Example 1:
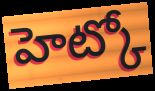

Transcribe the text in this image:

హెట్కో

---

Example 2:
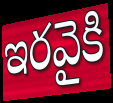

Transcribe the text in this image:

ఇరవైకి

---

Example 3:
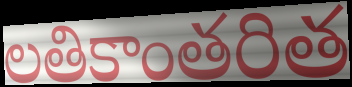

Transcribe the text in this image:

లతికాంతరిత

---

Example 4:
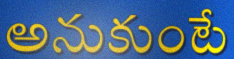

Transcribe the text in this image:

అనుకుంటే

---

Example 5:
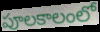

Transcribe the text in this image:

పూలకాలంలో